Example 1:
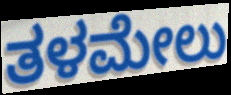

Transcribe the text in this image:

ತಳಮೇಲು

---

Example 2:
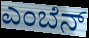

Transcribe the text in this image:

ಎಂಬೆನ್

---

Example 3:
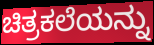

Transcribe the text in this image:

ಚಿತ್ರಕಲೆಯನ್ನು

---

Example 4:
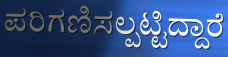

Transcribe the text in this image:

ಪರಿಗಣಿಸಲ್ಪಟ್ಟಿದ್ದಾರೆ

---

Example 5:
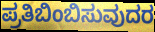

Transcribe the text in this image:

ಪ್ರತಿಬಿಂಬಿಸುವುದರ